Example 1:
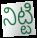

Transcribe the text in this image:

నిట్టి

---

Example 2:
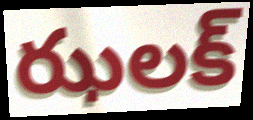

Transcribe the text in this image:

ఝలక్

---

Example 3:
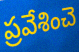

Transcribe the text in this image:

ప్రవేశించె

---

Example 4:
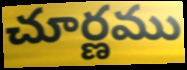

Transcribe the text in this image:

చూర్ణము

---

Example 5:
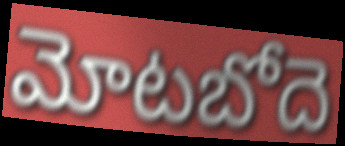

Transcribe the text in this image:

మోటబోదె